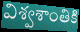
విశ్వశాంతికి